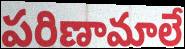
పరిణామాలే